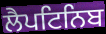
ਲੈਪਟਿਨਿਬ